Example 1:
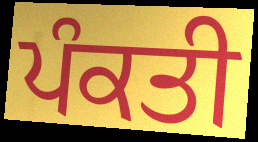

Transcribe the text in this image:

ਪੰਕਤੀ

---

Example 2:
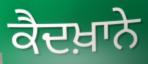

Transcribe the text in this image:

ਕੈਦਖ਼ਾਨੇ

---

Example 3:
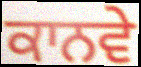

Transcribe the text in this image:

ਕਾਨਵੇ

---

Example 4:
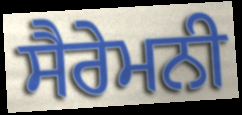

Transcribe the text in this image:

ਸੈਰੇਮਨੀ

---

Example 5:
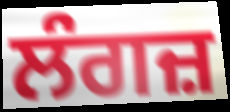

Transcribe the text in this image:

ਲੰਗਜ਼